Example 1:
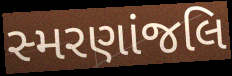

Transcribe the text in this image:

સ્મરણાંજલિ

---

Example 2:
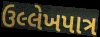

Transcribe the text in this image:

ઉલ્લેખપાત્ર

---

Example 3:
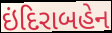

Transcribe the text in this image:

ઇંદિરાબહેન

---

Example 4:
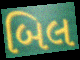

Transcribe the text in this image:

બિલ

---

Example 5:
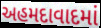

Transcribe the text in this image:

અહમદાવાદમાં